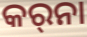
କର୍‌ନା